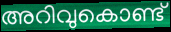
അറിവുകൊണ്ട്